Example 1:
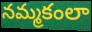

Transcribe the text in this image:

నమ్మకంలా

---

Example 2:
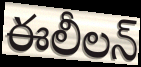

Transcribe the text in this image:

ఈలీలన్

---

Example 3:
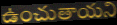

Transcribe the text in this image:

ఉంచుతాయని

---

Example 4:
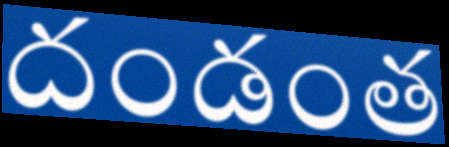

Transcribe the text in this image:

దండంత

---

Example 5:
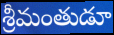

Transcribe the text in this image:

శ్రీమంతుడూ